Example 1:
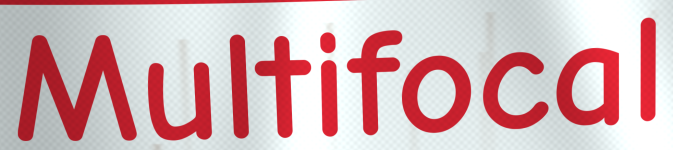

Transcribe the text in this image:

Multifocal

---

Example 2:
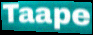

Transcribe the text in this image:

Taape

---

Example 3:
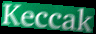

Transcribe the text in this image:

Keccak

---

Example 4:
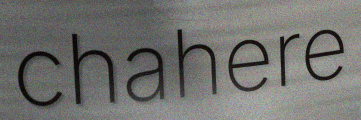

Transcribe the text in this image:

chahere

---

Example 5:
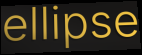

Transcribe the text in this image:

ellipse